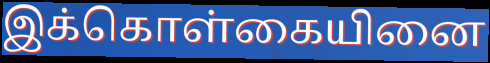
இக்கொள்கையினை